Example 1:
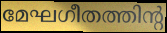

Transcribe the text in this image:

മേഘഗീതത്തിന്റ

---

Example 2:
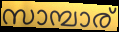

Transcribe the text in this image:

സാമ്പാര്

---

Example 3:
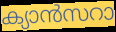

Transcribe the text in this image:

ക്യാൻസറാ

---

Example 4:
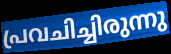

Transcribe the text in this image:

പ്രവചിച്ചിരുന്നു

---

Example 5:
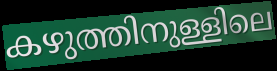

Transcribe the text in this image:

കഴുത്തിനുള്ളിലെ